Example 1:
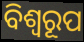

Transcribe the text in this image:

ବିଶ୍ୱରୂପ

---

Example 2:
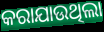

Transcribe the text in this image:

କରାଯାଉଥିଲା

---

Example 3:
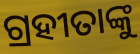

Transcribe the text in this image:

ଗ୍ରହୀତାଙ୍କୁ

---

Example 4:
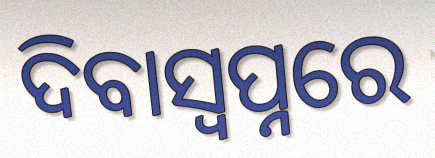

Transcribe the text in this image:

ଦିବାସ୍ବପ୍ନରେ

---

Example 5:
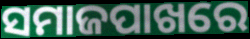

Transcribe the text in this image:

ସମାଜପାଖରେ